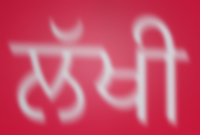
ਲੱਖੀ